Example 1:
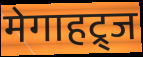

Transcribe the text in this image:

मेगाहट्र्ज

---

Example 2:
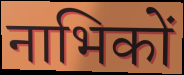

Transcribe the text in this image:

नाभिकों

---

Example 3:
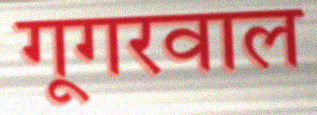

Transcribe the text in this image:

गूगरवाल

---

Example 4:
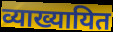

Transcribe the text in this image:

व्याख्यायित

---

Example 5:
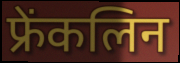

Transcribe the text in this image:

फ्रेंकलिन